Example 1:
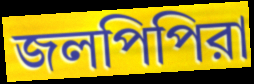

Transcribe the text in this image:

জলপিপিরা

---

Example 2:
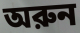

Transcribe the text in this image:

অরুন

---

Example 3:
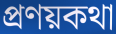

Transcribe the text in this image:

প্রণয়কথা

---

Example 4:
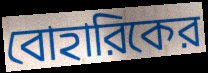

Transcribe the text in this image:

বোহারিকের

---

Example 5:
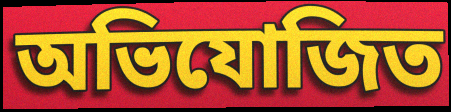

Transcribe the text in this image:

অভিযোজিত